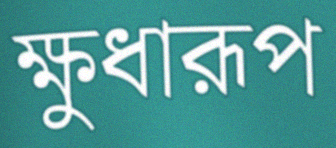
ক্ষুধারূপ